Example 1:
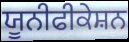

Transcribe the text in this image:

ਯੂਨੀਫੀਕੇਸ਼ਨ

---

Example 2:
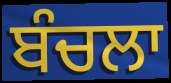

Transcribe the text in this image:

ਬੰਚਲਾ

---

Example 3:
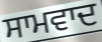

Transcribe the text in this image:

ਸਾਮਵਾਦ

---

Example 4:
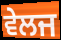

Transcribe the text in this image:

ਵੇਲਜ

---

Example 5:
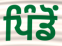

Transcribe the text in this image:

ਪਿੰਡੋਂ